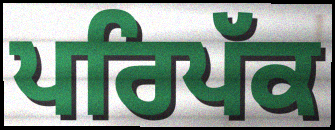
ਪਰਿਪੱਕ